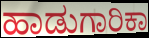
ಹಾಡುಗಾರಿಕಾ